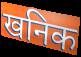
खनिक